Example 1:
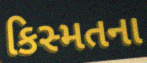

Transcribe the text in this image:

કિસ્મતના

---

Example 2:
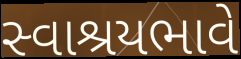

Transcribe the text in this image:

સ્વાશ્રયભાવે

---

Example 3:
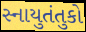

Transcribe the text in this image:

સ્નાયુતંતુકો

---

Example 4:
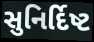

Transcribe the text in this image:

સુનિર્દિષ્ટ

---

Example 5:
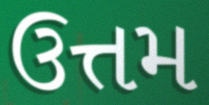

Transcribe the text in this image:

ઉત્તમ